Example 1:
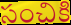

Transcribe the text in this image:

సంచికి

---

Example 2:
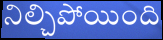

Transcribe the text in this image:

నిల్చిపోయింది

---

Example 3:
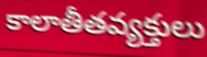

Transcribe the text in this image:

కాలాతీతవ్యక్తులు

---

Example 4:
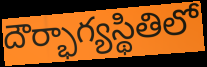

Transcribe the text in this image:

దౌర్భాగ్యస్థితిలో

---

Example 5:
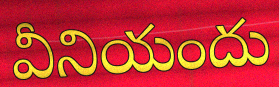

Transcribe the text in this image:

వీనియందు